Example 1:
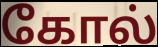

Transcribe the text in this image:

கோல்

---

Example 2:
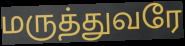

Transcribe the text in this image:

மருத்துவரே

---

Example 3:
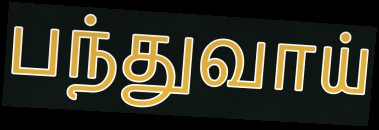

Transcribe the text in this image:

பந்துவாய்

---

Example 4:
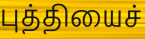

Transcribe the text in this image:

புத்தியைச்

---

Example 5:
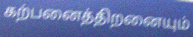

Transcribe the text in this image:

கற்பனைத்திறனையும்